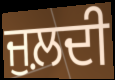
ਜੁਲ਼ਦੀ